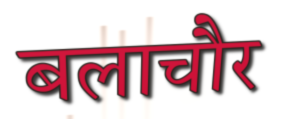
बलाचौर